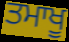
ਤਮਾਖੂ